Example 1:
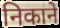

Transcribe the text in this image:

निकाने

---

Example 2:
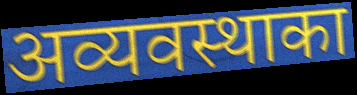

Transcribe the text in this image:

अव्यवस्थाका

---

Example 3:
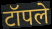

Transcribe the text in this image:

टॉपले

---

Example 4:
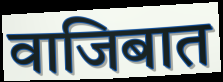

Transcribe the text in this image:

वाजिबात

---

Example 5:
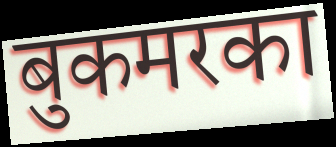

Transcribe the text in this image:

बुकमरका